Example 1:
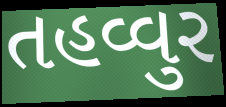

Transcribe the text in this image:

તહવ્વુર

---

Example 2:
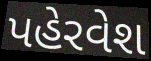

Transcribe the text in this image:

પહેરવેશ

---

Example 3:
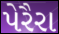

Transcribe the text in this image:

પેરૈરા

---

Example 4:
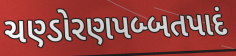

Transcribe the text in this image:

ચણ્ડોરણપબ્બતપાદં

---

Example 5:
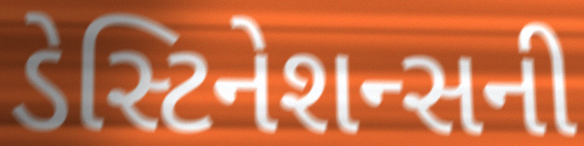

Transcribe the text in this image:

ડેસ્ટિનેશન્સની